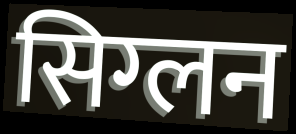
सिग्‍लन